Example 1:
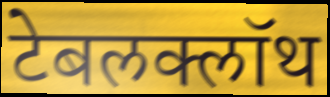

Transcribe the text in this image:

टेबलक्लॉथ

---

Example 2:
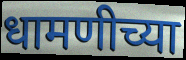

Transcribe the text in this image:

धामणीच्या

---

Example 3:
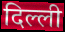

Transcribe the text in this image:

दिल्‍ली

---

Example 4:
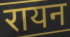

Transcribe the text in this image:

रायन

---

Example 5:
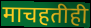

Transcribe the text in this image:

माचहतीही